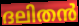
ദലിതൻ